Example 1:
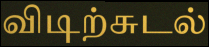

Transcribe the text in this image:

விடிற்சுடல்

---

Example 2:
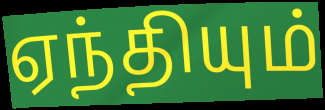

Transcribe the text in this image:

ஏந்தியும்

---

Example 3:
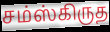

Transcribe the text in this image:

சம்ஸ்கிருத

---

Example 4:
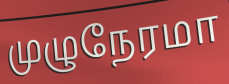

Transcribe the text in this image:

முழுநேரமா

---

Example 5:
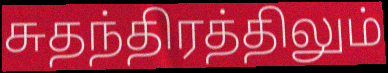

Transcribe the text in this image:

சுதந்திரத்திலும்